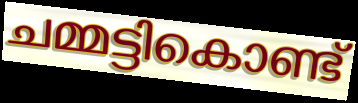
ചമ്മട്ടികൊണ്ട്